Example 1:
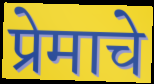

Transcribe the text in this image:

प्रेमाचे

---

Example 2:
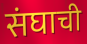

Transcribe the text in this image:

संघाची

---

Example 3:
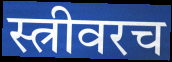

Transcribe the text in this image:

स्त्रीवरच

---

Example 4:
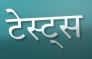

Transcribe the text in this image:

टेस्ट्स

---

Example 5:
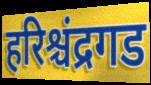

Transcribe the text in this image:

हरिश्चंद्रगड